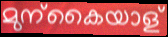
മുന്കൈയാള്